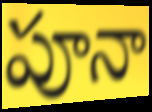
పూనా